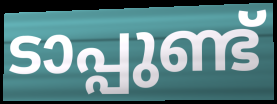
ടാപ്പുണ്ട്